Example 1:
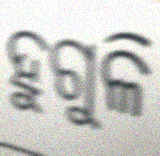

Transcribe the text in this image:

ହୁଗୁଳି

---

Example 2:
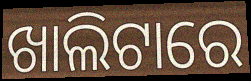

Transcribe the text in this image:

ଖାଲିଟାରେ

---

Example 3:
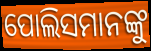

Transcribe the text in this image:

ପୋଲିସମାନଙ୍କୁ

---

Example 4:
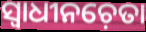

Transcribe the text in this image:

ସ୍ୱାଧୀନଚ଼େତା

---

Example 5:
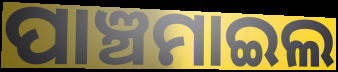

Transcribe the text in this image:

ପାଞ୍ଚମାଇଲ